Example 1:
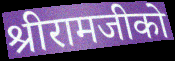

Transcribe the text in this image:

श्रीरामजीको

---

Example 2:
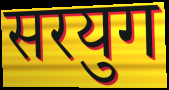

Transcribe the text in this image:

सरयुग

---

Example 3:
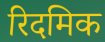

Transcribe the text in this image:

रिदमिक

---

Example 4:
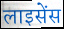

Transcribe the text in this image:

लाइसेंस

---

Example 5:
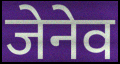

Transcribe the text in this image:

जेनेव